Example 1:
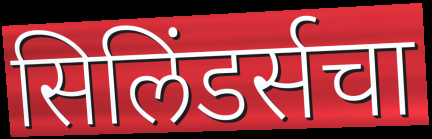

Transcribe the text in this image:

सिलिंडर्सचा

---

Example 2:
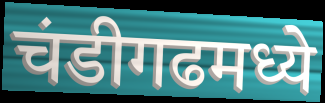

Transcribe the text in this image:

चंडीगढमध्ये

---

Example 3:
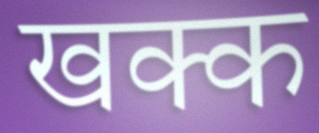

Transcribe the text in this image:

खक्क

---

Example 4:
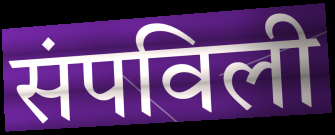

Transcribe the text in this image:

संपविली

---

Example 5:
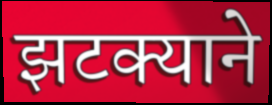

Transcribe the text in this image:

झटक्याने